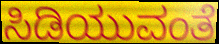
ಸಿಡಿಯುವಂತೆ